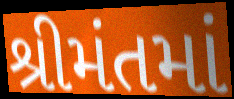
શ્રીમંતમાં